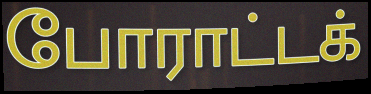
போராட்டக்